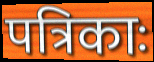
पत्रिकाः